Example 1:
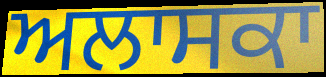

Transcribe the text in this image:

ਅਲਾਸਕਾ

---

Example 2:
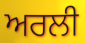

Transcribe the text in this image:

ਅਰਲੀ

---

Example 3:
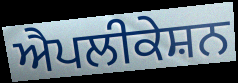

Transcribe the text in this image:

ਐਪਲੀਕੇਸ਼ਨ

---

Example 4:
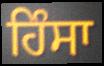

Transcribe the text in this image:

ਹਿੰਸਾ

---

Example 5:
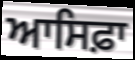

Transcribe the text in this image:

ਆਸਿਫ਼ਾ